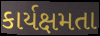
કાર્યક્ષમતા